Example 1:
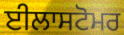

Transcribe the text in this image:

ਈਲਾਸਟੋਮਰ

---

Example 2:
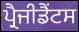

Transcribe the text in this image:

ਪ੍ਰੈਜੀਡੈਂਟਸ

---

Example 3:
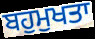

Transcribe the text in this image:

ਬਹੁਮੁਖਤਾ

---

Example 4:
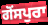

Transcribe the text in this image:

ਗੋਂਸਪੁਰਾ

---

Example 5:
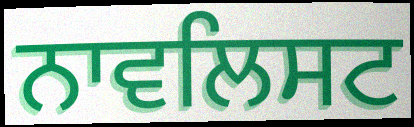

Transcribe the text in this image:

ਨਾਵਲਿਸਟ